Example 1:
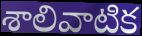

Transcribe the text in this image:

శాలివాటిక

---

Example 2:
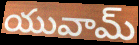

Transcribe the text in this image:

యువామ్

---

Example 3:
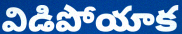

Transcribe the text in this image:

విడిపోయాక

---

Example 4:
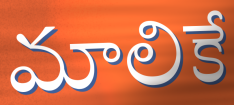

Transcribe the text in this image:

మాలికే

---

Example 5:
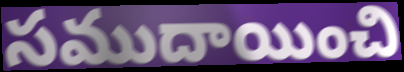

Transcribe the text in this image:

సముదాయించి